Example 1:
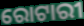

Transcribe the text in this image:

ରୋଟାରୀ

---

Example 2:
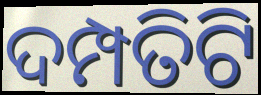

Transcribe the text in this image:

ଦମ୍ପତିଟି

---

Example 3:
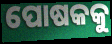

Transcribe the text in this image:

ପୋଷକକୁ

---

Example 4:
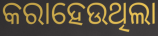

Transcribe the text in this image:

କରାହେଉଥିଲା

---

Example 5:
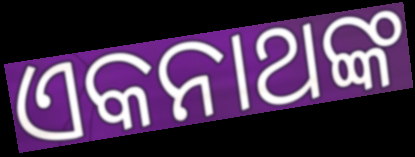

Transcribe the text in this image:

ଏକନାଥଙ୍କ